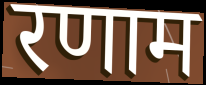
रणाम